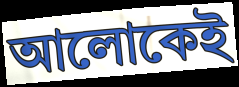
আলোকেই